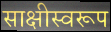
साक्षीस्वरूप